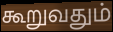
கூறுவதும்